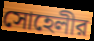
সোহেলীর